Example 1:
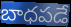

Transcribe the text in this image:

బాధపడే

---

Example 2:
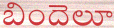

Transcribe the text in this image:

బిందెలూ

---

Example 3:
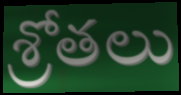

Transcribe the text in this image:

శ్రోతలు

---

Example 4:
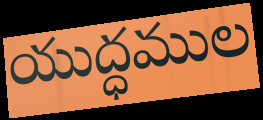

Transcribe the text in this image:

యుద్ధముల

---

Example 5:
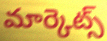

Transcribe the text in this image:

మార్కెట్స్